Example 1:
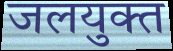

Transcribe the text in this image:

जलयुक्त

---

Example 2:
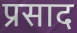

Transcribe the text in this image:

प्रसाद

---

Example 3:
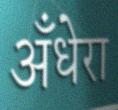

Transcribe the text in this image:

अँधेरा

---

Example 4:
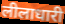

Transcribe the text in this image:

लीलाधारी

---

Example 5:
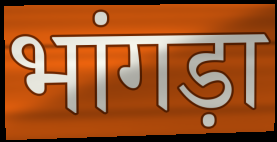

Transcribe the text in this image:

भांगड़ा